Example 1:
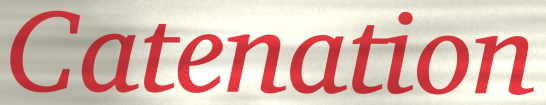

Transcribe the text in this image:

Catenation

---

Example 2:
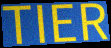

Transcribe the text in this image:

TIER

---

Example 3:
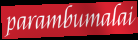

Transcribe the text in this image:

parambumalai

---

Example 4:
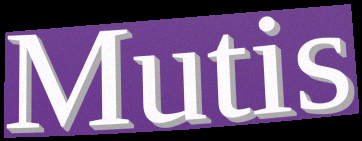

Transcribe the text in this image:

Mutis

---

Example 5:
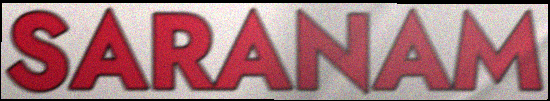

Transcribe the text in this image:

SARANAM